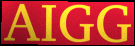
AIGG